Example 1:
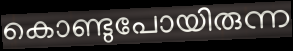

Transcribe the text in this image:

കൊണ്ടുപോയിരുന്ന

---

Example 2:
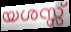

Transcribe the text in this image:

യശസ്സ്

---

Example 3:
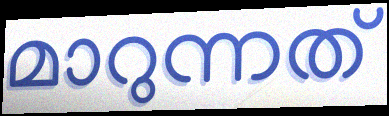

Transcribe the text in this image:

മാറുന്നത്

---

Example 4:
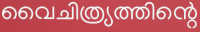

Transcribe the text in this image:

വൈചിത്ര്യത്തിന്റെ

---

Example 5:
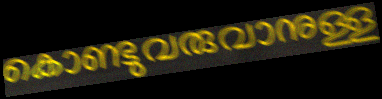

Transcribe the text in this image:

കൊണ്ടുവരുവാനുള്ള